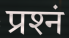
प्रश्‍नं